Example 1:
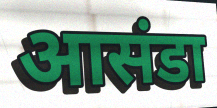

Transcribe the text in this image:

आसंडा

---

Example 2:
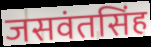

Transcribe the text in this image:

जसवंतसिंह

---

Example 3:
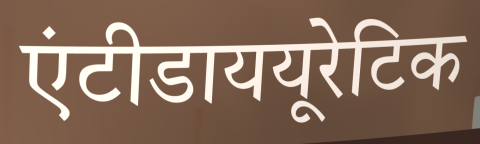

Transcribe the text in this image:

एंटीडाययूरेटिक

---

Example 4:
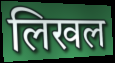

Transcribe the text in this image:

लिखल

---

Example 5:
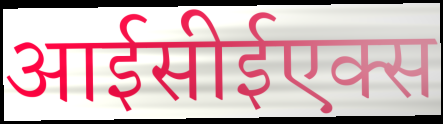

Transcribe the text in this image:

आईसीईएक्स